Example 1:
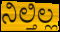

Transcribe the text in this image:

ನಿಲ್ತಿಲ್ಲ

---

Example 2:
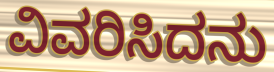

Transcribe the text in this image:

ವಿವರಿಸಿದನು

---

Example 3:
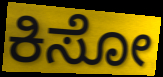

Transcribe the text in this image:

ಕಿಸೋ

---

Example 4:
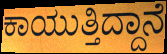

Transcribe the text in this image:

ಕಾಯುತ್ತಿದ್ದಾನೆ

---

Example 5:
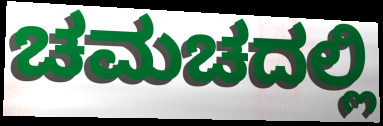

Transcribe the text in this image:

ಚಮಚದಲ್ಲಿ